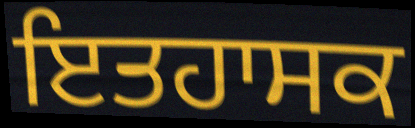
ਇਤਹਾਸਕ